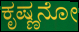
ಕೃಷ್ಣನೋ